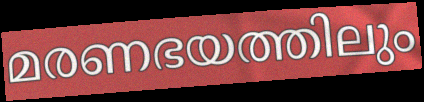
മരണഭയത്തിലും